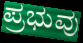
ಪ್ರಭುವು